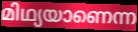
മിഥ്യയാണെന്ന